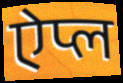
ऐप्ल